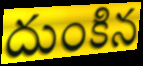
దుంకిన